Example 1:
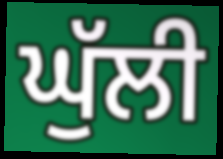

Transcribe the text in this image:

ਘੁੱਲੀ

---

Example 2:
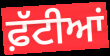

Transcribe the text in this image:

ਫ਼ੱਟੀਆਂ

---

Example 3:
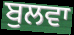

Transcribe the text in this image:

ਬੁਲਵਾ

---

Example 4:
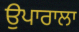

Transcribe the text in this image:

ਉਪਾਰਾਲਾ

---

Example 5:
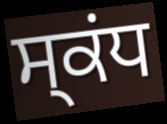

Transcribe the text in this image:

ਸ੍ਕਂਧ